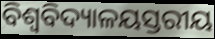
ବିଶ୍ଵବିଦ୍ୟାଳୟସ୍ତରୀୟ